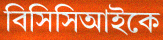
বিসিসিআইকে